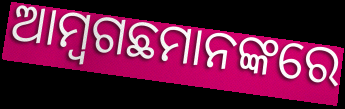
ଆମ୍ବଗଛମାନଙ୍କରେ